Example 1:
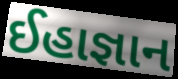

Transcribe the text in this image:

ઈહાજ્ઞાન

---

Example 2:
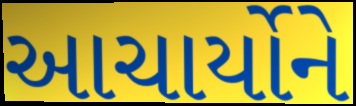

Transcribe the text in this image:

આચાર્યોને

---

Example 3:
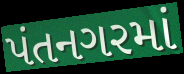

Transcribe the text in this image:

પંતનગરમાં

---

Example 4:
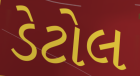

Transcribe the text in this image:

ડેટોલ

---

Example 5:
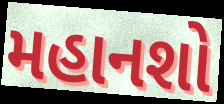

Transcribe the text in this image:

મહાનશો